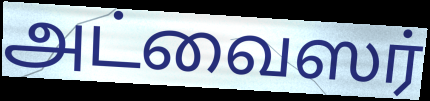
அட்வைஸர்